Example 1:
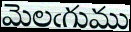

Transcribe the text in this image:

మెలఁగుము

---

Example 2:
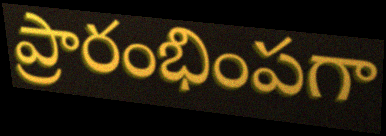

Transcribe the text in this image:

ప్రారంభింపగా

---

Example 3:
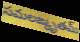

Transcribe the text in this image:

సమలఙ్కృతమ్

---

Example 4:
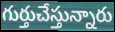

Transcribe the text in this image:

గుర్తుచేస్తున్నారు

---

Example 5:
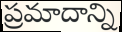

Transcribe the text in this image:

ప్రమాదాన్ని